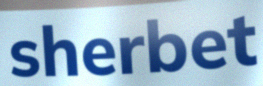
sherbet